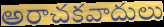
అరాచకవాదులు